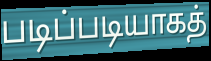
படிப்படியாகத்